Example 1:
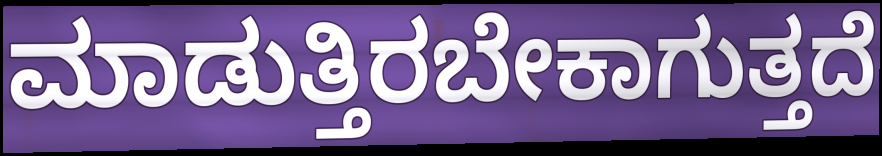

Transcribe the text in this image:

ಮಾಡುತ್ತಿರಬೇಕಾಗುತ್ತದೆ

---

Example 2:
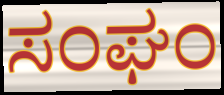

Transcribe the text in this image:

ಸಂಘಂ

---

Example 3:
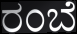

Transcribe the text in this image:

ರಂಬೆ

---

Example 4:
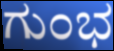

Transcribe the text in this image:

ಗುಂಭ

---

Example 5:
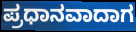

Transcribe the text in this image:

ಪ್ರಧಾನವಾದಾಗ